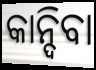
କାନ୍ଦିବା